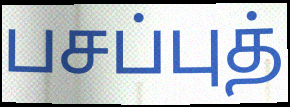
பசப்புத்